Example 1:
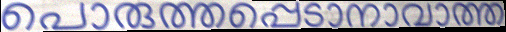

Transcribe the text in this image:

പൊരുത്തപ്പെടാനാവാത്ത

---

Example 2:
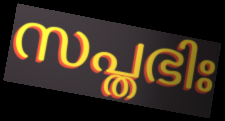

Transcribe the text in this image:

സപ്തഭിഃ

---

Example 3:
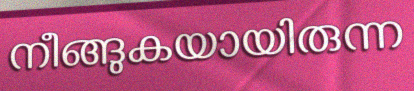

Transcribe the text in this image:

നീങ്ങുകയായിരുന്ന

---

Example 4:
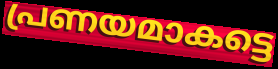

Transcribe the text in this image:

പ്രണയമാകട്ടെ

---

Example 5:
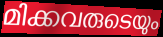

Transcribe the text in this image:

മിക്കവരുടെയും